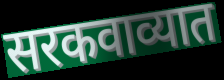
सरकवाव्यात